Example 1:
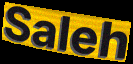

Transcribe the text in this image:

Saleh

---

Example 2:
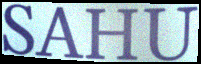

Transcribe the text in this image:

SAHU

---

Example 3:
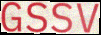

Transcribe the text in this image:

GSSV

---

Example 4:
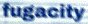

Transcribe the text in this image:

fugacity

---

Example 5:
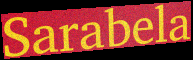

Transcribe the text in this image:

Sarabela